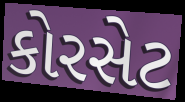
કોરસેટ